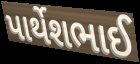
પાર્થેશભાઈ